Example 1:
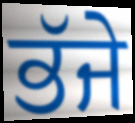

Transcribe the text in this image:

ਭੱਜੇ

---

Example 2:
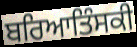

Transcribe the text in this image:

ਬਰਿਆਤਿੰਸਕੀ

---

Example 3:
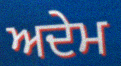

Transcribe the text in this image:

ਅਦੇਮ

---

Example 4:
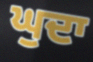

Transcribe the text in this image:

ਘੁਦਾ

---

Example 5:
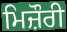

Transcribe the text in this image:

ਮਿਜ਼ੌਰੀ